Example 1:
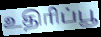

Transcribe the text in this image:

உதிரிப்பூ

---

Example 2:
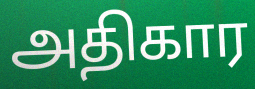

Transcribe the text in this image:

அதிகார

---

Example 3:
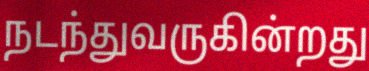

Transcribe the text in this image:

நடந்துவருகின்றது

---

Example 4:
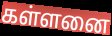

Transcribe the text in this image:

கள்ளனை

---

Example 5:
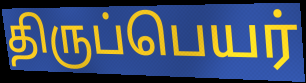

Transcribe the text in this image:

திருப்பெயர்